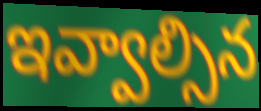
ఇవ్వాల్సిన